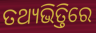
ତଥ୍ୟଭିତ୍ତିରେ